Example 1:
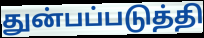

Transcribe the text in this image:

துன்பப்படுத்தி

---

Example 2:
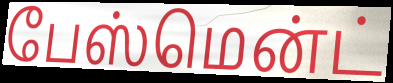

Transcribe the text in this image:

பேஸ்மென்ட்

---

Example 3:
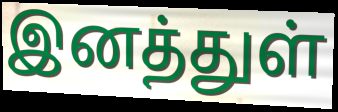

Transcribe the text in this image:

இனத்துள்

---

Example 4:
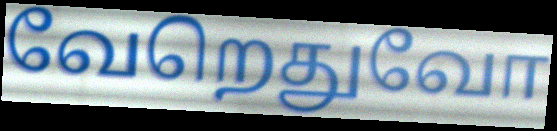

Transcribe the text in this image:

வேறெதுவோ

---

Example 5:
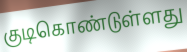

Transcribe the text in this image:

குடிகொண்டுள்ளது